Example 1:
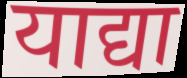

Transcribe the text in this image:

याद्या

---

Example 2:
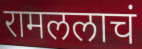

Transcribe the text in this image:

रामललाचं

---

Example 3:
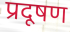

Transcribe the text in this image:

प्रदूषण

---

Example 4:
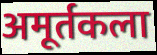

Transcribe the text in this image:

अमूर्तकला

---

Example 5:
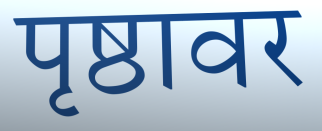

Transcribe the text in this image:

पृष्ठावर